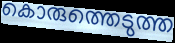
കൊരുത്തെടുത്ത